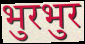
भुरभुर